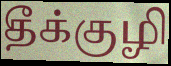
தீக்குழி